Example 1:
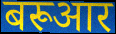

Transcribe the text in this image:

बरूआर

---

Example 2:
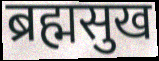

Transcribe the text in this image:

ब्रह्मसुख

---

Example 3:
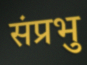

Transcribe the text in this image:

संप्रभु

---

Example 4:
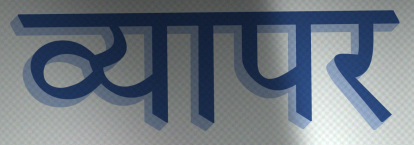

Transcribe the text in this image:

व्यापर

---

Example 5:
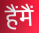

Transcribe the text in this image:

हैंमैं